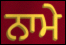
ਨਾਮੇ